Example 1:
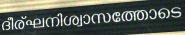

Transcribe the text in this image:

ദീര്ഘനിശ്വാസത്തോടെ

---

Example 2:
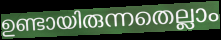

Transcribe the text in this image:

ഉണ്ടായിരുന്നതെല്ലാം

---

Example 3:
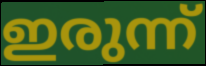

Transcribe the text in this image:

ഇരുന്ന്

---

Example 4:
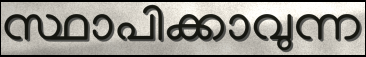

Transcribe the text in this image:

സ്ഥാപിക്കാവുന്ന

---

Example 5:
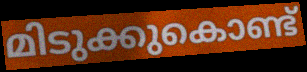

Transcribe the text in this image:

മിടുക്കുകൊണ്ട്